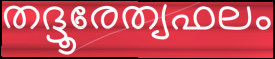
തദ്ദൂരേത്യഫലം